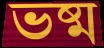
ভষ্ম